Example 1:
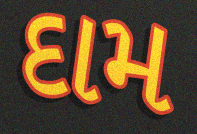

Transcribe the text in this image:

દામ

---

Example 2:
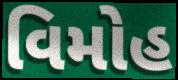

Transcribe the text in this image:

વિમોહ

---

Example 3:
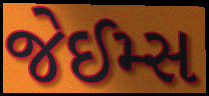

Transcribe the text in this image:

જેઈમ્સ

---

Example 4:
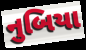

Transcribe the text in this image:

નુબિયા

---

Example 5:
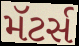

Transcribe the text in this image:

મૅટર્સ